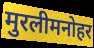
मुरलीमनोहर